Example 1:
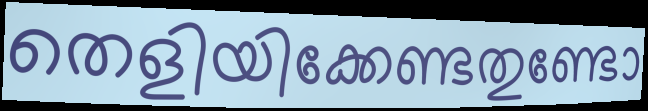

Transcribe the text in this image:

തെളിയിക്കേണ്ടതുണ്ടോ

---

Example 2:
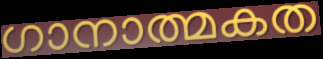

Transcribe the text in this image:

ഗാനാത്മകത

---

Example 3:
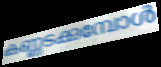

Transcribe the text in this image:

കണ്ണടക്കുമ്പോൾ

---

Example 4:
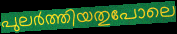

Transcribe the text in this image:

പുലർത്തിയതുപോലെ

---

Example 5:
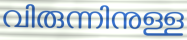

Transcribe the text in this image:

വിരുന്നിനുള്ള